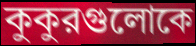
কুকুরগুলোকে